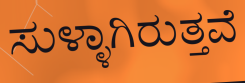
ಸುಳ್ಳಾಗಿರುತ್ತವೆ